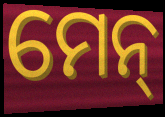
ମେନ୍